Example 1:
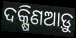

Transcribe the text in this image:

ଦକ୍ଷିଣଆଡ଼ୁ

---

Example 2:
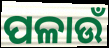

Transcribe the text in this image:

ପଳାଉଁ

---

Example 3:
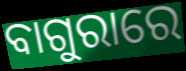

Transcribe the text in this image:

ବାଗୁରାରେ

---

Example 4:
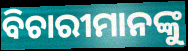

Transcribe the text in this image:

ବିଚାରୀମାନଙ୍କୁ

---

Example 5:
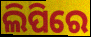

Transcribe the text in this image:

ଲିପିରେ